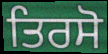
ਤਿਰਸੋ